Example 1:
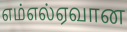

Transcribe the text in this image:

எம்எல்ஏவான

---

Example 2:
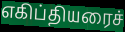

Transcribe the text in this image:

எகிப்தியரைச்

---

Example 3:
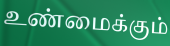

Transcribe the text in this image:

உண்மைக்கும்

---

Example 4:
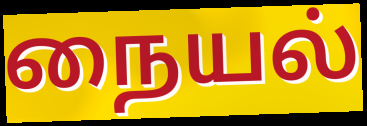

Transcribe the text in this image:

நையல்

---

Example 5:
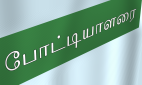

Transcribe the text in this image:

போட்டியாளரை